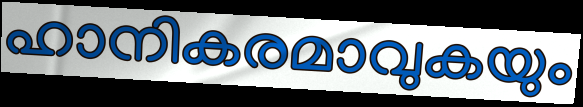
ഹാനികരമാവുകയും